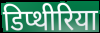
डिप्थीरिया